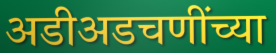
अडीअडचणींच्या